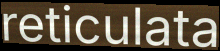
reticulata